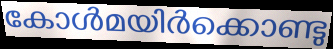
കോൾമയിർക്കൊണ്ടു